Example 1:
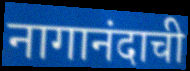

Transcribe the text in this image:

नागानंदाची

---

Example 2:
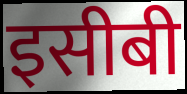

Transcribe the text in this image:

इसीबी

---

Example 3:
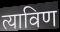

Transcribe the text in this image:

त्याविण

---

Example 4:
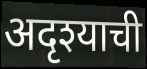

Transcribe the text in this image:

अदृश्याची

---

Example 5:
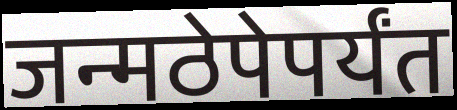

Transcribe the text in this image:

जन्मठेपेपर्यंत